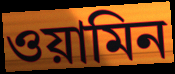
ওয়ামিন